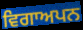
ਵਿਗਾਅਪਨ